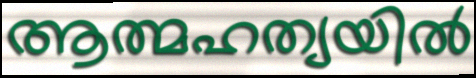
ആത്മഹത്യയിൽ